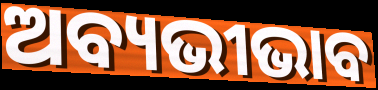
ଅବ୍ୟଭୀଭାବ